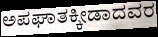
ಅಪಘಾತಕ್ಕೀಡಾದವರ